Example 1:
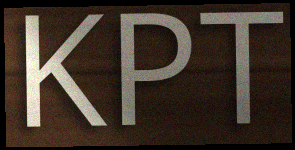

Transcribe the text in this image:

KPT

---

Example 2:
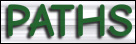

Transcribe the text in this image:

PATHS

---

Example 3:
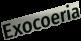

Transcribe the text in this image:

Exocoeria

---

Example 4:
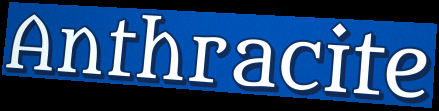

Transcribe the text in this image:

Anthracite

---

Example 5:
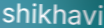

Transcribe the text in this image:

shikhavi